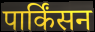
पार्किंसन